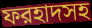
ফরহাদসহ